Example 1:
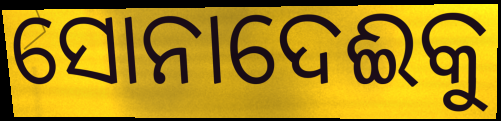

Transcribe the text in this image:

ସୋନାଦେଈକୁ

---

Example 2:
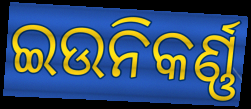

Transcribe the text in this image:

ଇଉନିକର୍ଣ୍ଣ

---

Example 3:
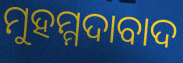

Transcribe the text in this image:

ମୁହମ୍ମଦାବାଦ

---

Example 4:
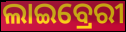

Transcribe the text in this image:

ଲାଇବ୍ରେରୀ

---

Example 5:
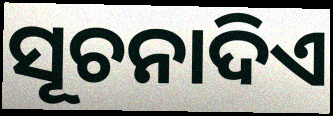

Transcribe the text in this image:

ସୂଚନାଦିଏ